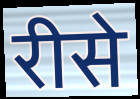
रीसे